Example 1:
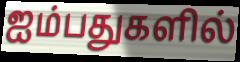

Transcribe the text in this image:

ஐம்பதுகளில்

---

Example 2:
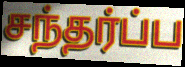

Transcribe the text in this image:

சந்தர்ப்ப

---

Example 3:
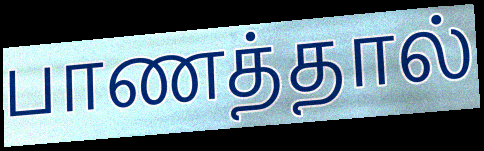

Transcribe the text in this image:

பாணத்தால்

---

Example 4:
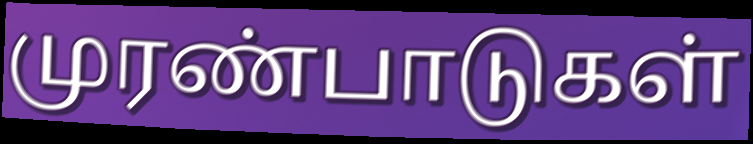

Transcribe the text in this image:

முரண்பாடுகள்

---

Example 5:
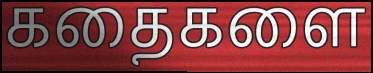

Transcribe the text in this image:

கதைகளை